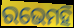
ରଭେମହି